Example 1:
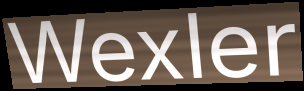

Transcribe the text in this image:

Wexler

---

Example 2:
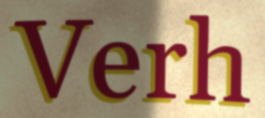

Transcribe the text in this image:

Verh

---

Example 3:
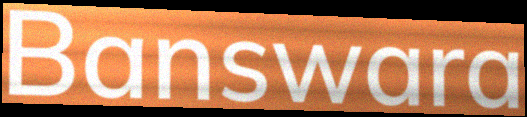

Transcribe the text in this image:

Banswara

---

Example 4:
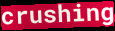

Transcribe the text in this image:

crushing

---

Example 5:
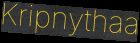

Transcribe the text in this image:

Kripnythaa